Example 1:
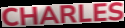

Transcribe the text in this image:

CHARLES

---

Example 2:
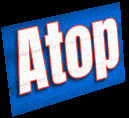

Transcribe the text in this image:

Atop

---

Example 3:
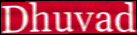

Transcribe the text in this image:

Dhuvad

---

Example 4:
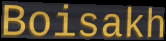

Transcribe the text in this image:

Boisakh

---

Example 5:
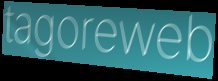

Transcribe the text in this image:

tagoreweb